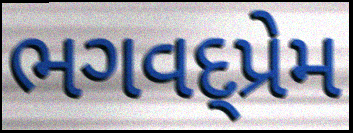
ભગવદ્પ્રેમ